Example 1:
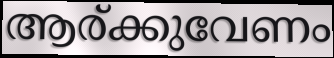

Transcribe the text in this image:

ആര്ക്കുവേണം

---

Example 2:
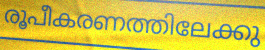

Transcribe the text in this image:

രൂപീകരണത്തിലേക്കു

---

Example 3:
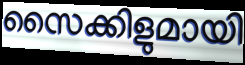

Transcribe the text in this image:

സൈക്കിളുമായി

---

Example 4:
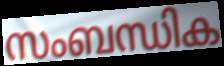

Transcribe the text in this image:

സംബന്ധിക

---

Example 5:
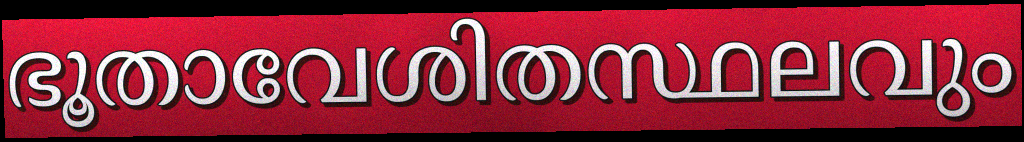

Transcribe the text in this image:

ഭൂതാവേശിതസ്ഥലവും